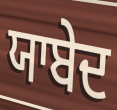
ਯਾਬੇਦ